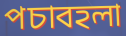
পচাবহলা